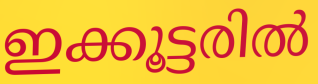
ഇക്കൂട്ടരിൽ